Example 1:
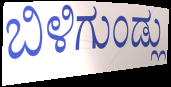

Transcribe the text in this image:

ಬಿಳಿಗುಂಡ್ಲು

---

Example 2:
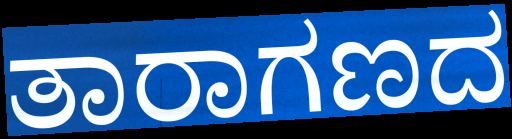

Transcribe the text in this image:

ತಾರಾಗಣದ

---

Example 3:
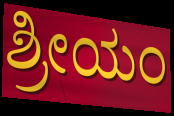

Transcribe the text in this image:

ಶ್ರೀಯಂ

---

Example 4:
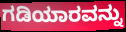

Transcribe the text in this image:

ಗಡಿಯಾರವನ್ನು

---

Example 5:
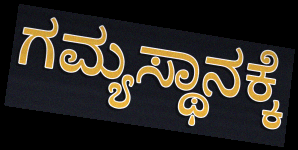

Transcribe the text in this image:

ಗಮ್ಯಸ್ಥಾನಕ್ಕೆ